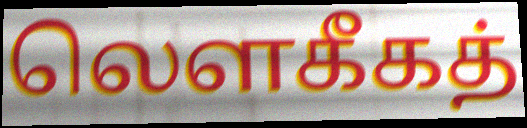
லௌகீகத்